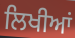
ਲਿਖੀਆਂ